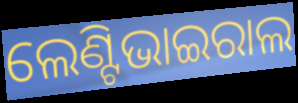
ଲେଣ୍ଟିଭାଇରାଲ